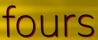
fours